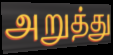
அறுத்து